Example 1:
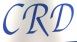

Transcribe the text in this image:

CRD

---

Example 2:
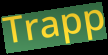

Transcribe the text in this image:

Trapp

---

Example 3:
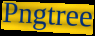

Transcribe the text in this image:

Pngtree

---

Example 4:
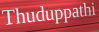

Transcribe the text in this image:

Thuduppathi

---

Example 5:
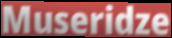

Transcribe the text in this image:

Museridze